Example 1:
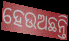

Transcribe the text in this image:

ହେଉଅଛନ୍ତି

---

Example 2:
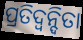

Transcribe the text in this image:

ପ୍ରତିଦ୍ୱନ୍ଦିତା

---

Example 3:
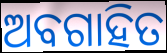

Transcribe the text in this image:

ଅବଗାହିତ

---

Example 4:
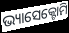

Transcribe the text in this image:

ଭ୍ୟାସେକ୍ଟୋମି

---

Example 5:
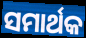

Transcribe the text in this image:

ସମାର୍ଥକ